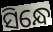
ସିନ୍ଧେ